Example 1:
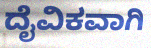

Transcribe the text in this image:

ದೈವಿಕವಾಗಿ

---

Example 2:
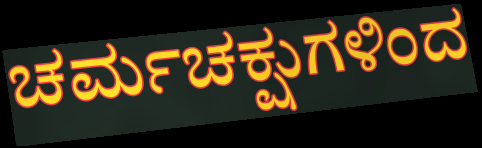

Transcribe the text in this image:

ಚರ್ಮಚಕ್ಷುಗಳಿಂದ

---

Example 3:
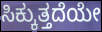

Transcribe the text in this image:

ಸಿಕ್ಕುತ್ತದೆಯೇ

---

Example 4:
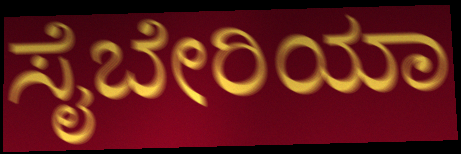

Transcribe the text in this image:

ಸೈಬೇರಿಯಾ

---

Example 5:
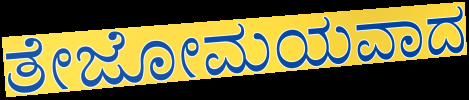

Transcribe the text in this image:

ತೇಜೋಮಯವಾದ